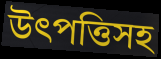
উৎপত্তিসহ